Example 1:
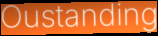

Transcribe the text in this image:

Oustanding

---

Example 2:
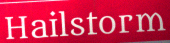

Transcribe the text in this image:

Hailstorm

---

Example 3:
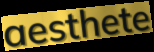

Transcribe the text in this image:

aesthete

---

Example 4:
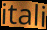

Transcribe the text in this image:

itali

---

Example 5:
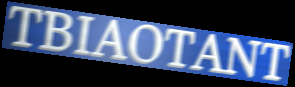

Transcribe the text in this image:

TBIAOTANT